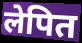
लेपित